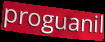
proguanil